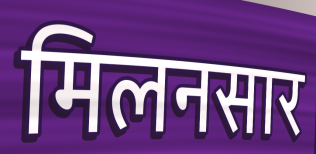
मिलनसार